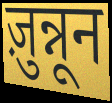
ज़ुन्नून